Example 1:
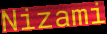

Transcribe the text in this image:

Nizami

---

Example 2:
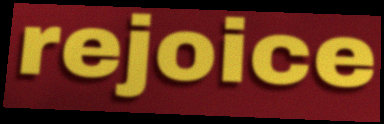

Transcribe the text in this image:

rejoice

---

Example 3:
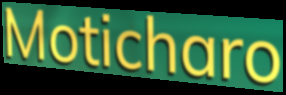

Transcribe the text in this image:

Moticharo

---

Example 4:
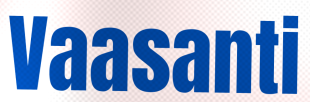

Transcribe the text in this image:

Vaasanti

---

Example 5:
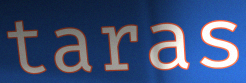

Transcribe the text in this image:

taras